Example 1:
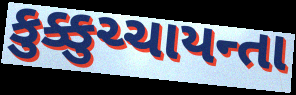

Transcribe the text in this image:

કુક્કુચ્ચાયન્તા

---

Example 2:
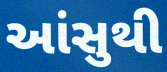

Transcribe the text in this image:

આંસુથી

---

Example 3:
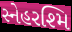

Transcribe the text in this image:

સ્નેહરશ્મિ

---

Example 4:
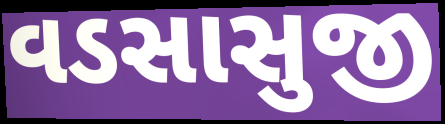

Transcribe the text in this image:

વડસાસુજી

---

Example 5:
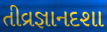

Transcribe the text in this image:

તીવ્રજ્ઞાનદશા